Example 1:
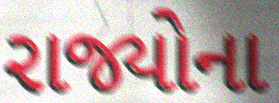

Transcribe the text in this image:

રાજ્યોના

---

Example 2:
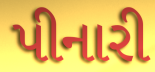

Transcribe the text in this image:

પીનારી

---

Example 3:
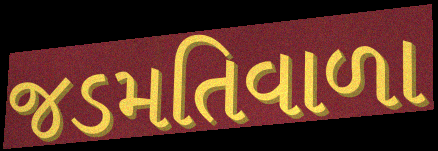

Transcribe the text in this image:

જડમતિવાળા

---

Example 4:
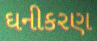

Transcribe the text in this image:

ઘનીકરણ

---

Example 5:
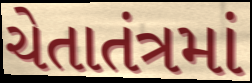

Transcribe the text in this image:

ચેતાતંત્રમાં